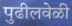
पुढीलवेळी